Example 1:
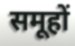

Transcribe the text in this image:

समूहों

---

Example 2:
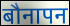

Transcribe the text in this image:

बौनापन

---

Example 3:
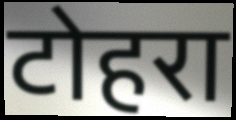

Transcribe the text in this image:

टोहरा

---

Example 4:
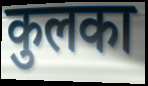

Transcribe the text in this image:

कुलका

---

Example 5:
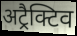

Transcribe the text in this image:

अट्रैक्टिव